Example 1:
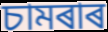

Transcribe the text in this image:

চামৰাৰ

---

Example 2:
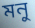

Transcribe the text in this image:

মনু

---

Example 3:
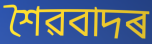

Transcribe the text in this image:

শৈৱবাদৰ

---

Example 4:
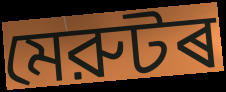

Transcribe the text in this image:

মেৰুটৰ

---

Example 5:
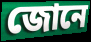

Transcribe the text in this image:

জোনে